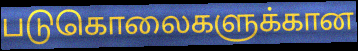
படுகொலைகளுக்கான